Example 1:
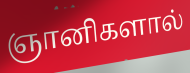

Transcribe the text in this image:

ஞானிகளால்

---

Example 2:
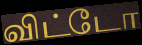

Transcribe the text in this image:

விட்டோ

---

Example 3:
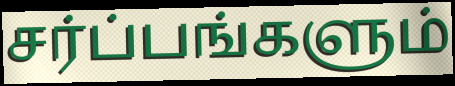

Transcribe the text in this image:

சர்ப்பங்களும்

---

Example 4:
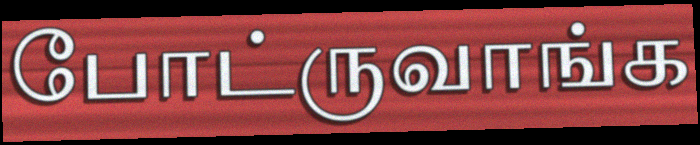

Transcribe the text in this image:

போட்ருவாங்க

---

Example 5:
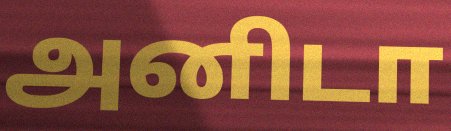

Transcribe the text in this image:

அனிடா